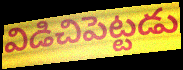
విడిచిపెట్టడు